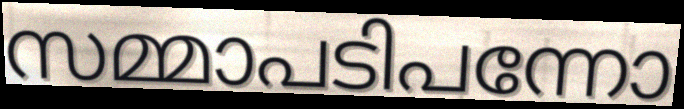
സമ്മാപടിപന്നോ